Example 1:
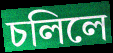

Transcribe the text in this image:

চলিলে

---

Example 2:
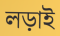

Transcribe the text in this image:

লড়াই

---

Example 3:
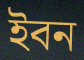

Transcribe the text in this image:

ইবন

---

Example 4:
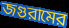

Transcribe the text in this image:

জগুরামের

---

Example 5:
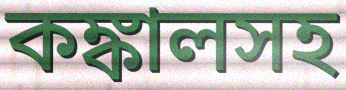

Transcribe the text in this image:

কঙ্কালসহ